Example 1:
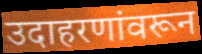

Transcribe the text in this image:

उदाहरणांवरून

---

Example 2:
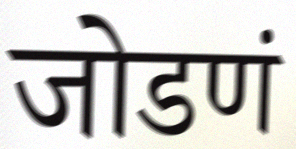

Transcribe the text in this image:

जोडणं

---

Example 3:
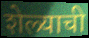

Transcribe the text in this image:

शेल्याची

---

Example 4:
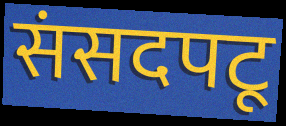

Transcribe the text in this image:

संसदपटू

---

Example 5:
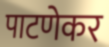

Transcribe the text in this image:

पाटणेकर